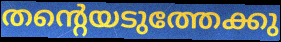
തന്റെയടുത്തേക്കു